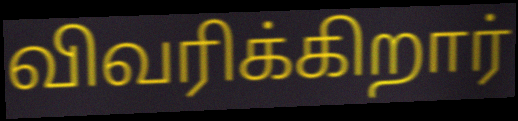
விவரிக்கிறார்